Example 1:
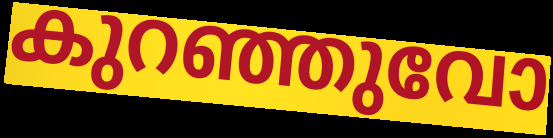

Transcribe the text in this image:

കുറഞ്ഞുവോ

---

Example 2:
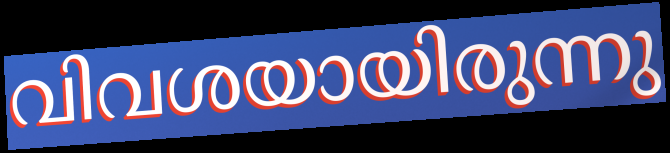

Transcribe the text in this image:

വിവശയായിരുന്നു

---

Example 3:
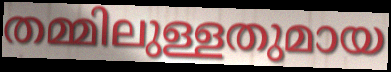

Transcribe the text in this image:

തമ്മിലുള്ളതുമായ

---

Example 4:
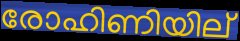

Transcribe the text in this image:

രോഹിണിയില്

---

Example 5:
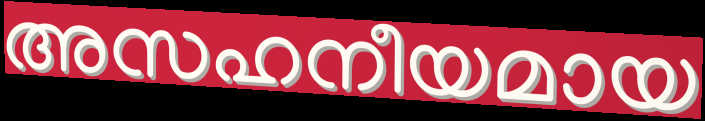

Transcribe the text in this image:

അസഹനീയമായ